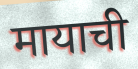
मायाची